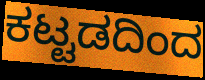
ಕಟ್ಟಡದಿಂದ